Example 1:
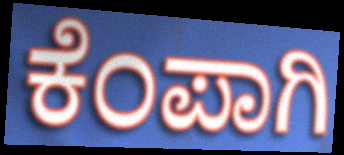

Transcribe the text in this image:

ಕೆಂಪಾಗಿ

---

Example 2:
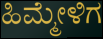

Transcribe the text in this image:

ಹಿಮ್ಮೇಳಿಗ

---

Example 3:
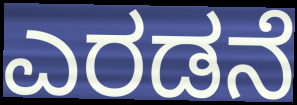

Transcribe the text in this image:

ಎರಡನೆ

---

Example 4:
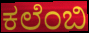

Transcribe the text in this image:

ಕಲೆಂಬಿ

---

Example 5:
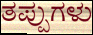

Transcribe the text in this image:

ತಪ್ಪುಗಳು